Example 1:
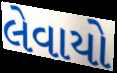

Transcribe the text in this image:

લેવાયો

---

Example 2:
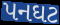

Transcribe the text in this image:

પનઘટ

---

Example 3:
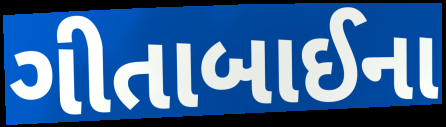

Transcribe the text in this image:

ગીતાબાઈના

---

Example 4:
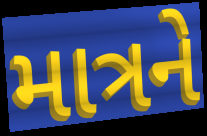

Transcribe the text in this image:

માત્રને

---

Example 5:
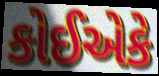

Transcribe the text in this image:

કોઈએકે